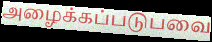
அழைக்கப்படுபவை